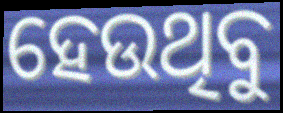
ହେଉଥିବୁ